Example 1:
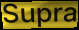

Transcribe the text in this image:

Supra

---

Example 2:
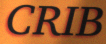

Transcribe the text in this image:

CRIB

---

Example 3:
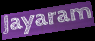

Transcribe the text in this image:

Jayaram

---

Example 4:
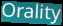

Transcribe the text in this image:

Orality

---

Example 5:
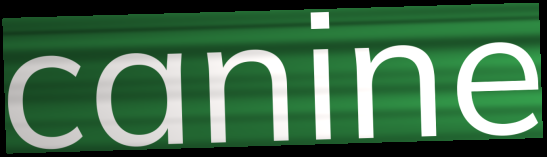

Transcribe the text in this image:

canine